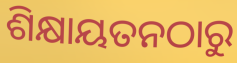
ଶିକ୍ଷାୟତନଠାରୁ